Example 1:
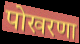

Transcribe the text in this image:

पोखरणा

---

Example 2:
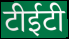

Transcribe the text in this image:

टीईटी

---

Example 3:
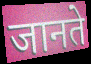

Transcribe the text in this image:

जानते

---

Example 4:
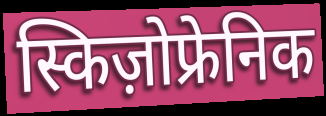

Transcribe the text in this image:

स्किज़ोफ्रेनिक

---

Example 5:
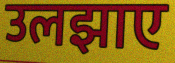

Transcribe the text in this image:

उलझाए